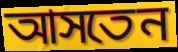
আসতেন